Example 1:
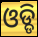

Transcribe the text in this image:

ଓଡ୍ଡି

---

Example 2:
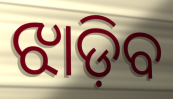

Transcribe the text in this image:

ଝାଡ଼ିବ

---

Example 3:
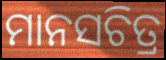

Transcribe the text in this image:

ମାନସଚିତ୍ର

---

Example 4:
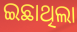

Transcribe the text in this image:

ଇଛାଥିଲା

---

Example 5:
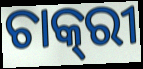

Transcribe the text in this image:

ଚାକ୍‌ରୀ